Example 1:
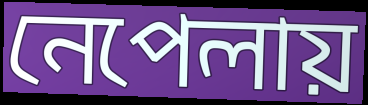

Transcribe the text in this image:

নেপেলায়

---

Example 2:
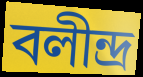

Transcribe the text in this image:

বলীন্দ্ৰ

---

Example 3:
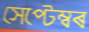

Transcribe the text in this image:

সেপ্টেম্বৰ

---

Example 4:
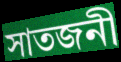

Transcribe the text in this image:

সাতজনী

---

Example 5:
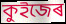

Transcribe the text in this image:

কুইজেৰ